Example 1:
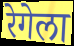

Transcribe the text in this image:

रेगेला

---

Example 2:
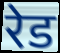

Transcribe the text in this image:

रेड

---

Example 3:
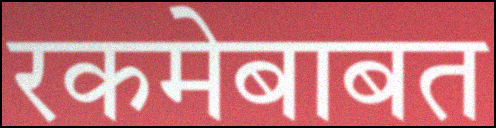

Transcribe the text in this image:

रकमेबाबत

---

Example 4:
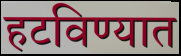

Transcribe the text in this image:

हटविण्यात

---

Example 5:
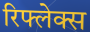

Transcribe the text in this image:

रिफ्लेक्स